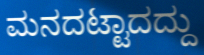
ಮನದಟ್ಟಾದದ್ದು